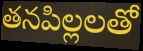
తనపిల్లలతో